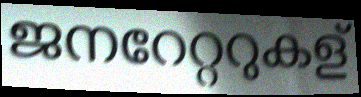
ജനറേറ്ററുകള്